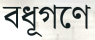
বধূগণে